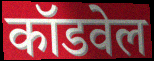
कॉडवेल